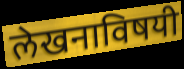
लेखनाविषयी